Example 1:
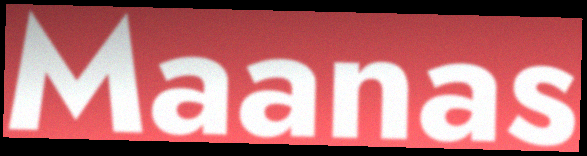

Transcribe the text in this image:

Maanas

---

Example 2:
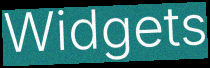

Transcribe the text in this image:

Widgets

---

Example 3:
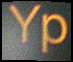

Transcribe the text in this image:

Yp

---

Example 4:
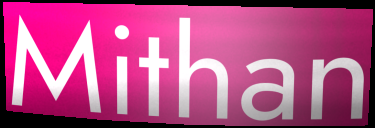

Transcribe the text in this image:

Mithan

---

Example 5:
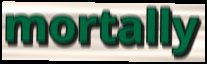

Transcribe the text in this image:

mortally